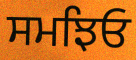
ਸਮਝਿਓ